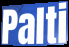
Palti